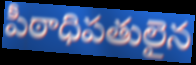
పీఠాధిపతులైన